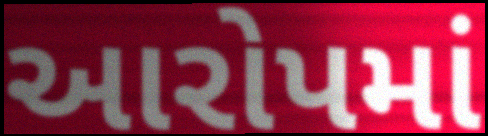
આરોપમાં